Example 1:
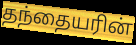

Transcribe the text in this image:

தந்தையரின்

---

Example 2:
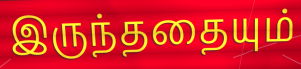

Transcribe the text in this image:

இருந்ததையும்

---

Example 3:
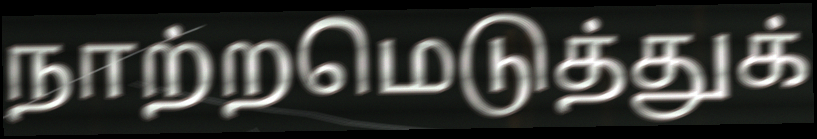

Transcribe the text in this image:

நாற்றமெடுத்துக்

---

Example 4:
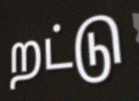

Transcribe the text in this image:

றட்டு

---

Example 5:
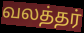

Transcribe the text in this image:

வலத்தர்